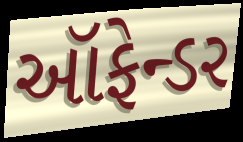
ઑફેન્ડર